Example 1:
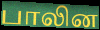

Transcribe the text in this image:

பாலின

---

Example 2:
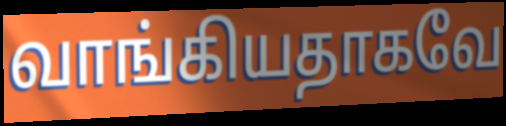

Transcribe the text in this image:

வாங்கியதாகவே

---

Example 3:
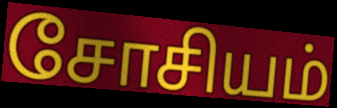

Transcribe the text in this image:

சோசியம்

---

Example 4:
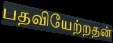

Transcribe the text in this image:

பதவியேற்றதன்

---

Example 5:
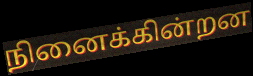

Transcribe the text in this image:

நினைக்கின்றன